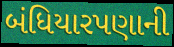
બંધિયારપણાની